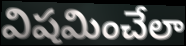
విషమించేలా